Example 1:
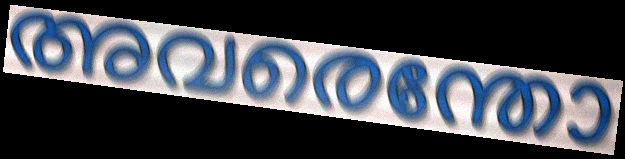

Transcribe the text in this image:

അവരെന്തോ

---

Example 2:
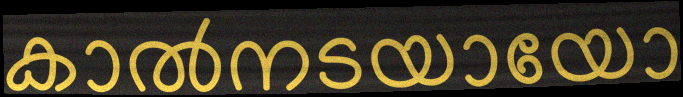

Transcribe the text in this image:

കാൽനടയായോ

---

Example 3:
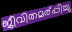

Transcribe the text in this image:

ജീവിതമര്പ്പിച്ചു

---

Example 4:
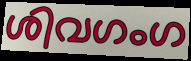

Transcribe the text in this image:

ശിവഗംഗ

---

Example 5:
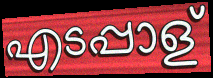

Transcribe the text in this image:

എടപ്പാള്